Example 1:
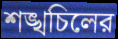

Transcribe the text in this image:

শঙ্খচিলের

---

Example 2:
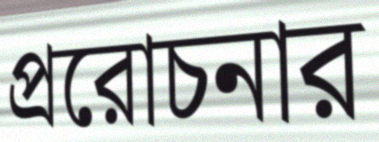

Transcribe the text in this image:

প্ররোচনার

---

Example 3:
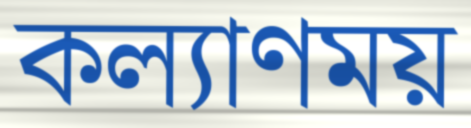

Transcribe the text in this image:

কল্যাণময়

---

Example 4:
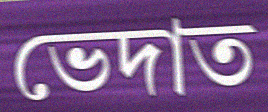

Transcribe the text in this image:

ভেদাত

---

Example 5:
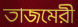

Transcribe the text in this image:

তাজমেরী